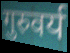
गुरुवर्य